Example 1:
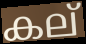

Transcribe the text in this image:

കല്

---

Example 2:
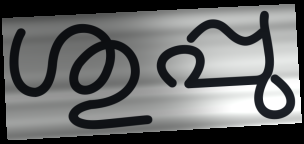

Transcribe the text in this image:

ശുപ്പു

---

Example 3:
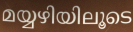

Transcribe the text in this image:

മയ്യഴിയിലൂടെ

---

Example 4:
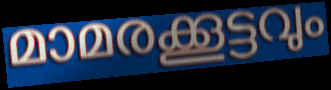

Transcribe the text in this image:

മാമരക്കൂട്ടവും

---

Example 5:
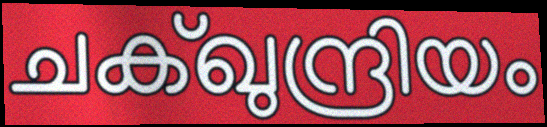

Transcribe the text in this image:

ചക്ഖുന്ദ്രിയം